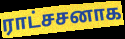
ராட்சசனாக